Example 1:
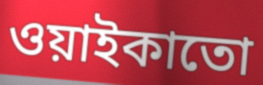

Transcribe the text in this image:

ওয়াইকাতো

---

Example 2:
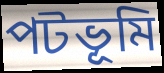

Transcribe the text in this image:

পটভূমি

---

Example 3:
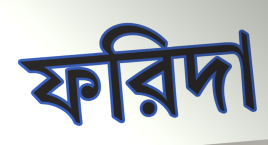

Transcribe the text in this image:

ফরিদা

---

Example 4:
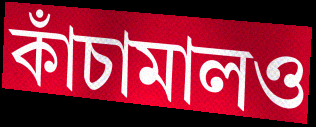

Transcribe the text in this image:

কাঁচামালও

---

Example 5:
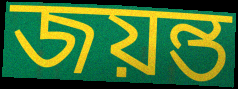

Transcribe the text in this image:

জয়ন্ত